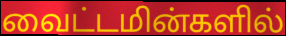
வைட்டமின்களில்